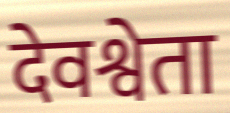
देवश्वेता